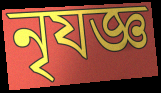
নৃযজ্ঞ